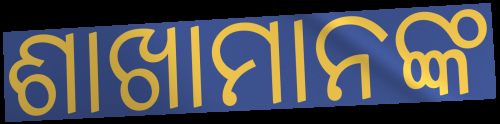
ଶାଖାମାନଙ୍କ